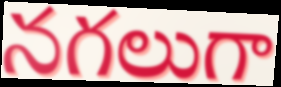
నగలుగా